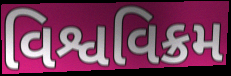
વિશ્વવિક્રમ